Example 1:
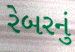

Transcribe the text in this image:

રેબરનું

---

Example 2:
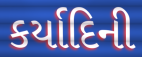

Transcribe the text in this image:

કર્યાદિની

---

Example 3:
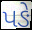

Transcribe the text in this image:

પઙે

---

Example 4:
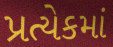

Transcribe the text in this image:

પ્રત્યેકમાં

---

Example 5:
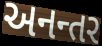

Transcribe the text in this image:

અનન્તર